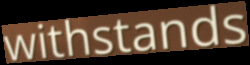
withstands